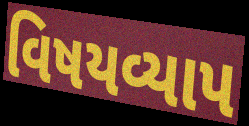
વિષયવ્યાપ